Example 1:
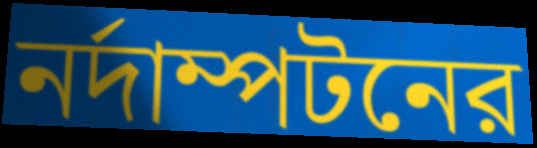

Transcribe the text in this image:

নর্দাম্পটনের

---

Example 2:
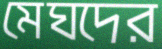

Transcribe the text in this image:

মেঘদের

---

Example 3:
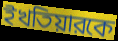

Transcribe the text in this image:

ইখতিয়ারকে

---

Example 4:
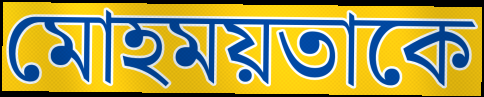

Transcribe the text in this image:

মোহময়তাকে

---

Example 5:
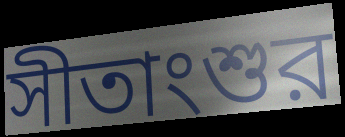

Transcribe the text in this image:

সীতাংশুর